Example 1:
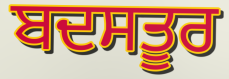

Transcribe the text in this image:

ਬਦਸਤੂਰ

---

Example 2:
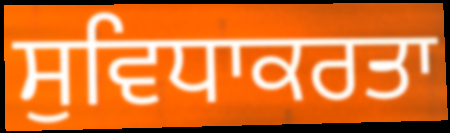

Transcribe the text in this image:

ਸੁਵਿਧਾਕਰਤਾ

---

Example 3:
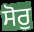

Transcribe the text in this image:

ਸੋਰੁ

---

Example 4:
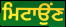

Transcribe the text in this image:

ਮਿਟਾਉਂਣ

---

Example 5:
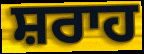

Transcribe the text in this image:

ਸ਼ਰਾਹ